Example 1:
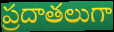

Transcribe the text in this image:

ప్రదాతలుగా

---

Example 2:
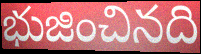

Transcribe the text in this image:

భుజించినది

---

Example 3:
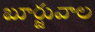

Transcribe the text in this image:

బూర్జువాల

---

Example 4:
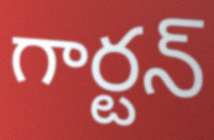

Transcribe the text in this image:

గార్టన్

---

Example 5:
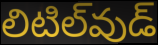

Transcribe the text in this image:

లిటిల్‌వుడ్